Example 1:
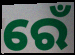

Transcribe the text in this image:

ରେଁ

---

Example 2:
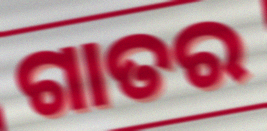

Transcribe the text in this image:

ଗାତର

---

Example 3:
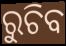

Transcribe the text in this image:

ରୁଚିବ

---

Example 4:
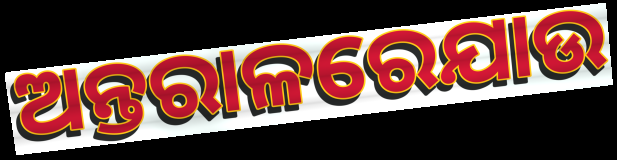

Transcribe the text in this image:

ଅନ୍ତରାଳରେଯାଉ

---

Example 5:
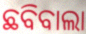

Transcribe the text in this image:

ଛବିବାଲା